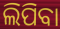
ଲିପିବା